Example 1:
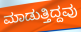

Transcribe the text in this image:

ಮಾಡುತ್ತಿದ್ದವು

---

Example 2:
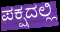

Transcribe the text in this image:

ಪಕ್ಷದಲ್ಲಿ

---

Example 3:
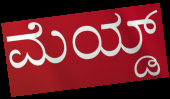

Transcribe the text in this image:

ಮೆಯ್ಡ್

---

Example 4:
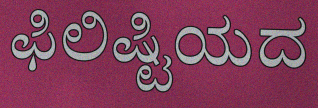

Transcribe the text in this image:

ಫಿಲಿಷ್ಟಿಯದ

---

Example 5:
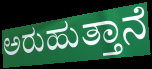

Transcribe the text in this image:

ಅರುಹುತ್ತಾನೆ